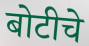
बोटीचे